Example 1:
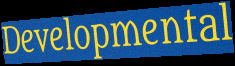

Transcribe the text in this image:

Developmental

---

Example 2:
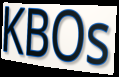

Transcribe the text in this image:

KBOs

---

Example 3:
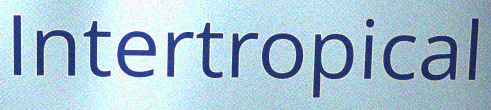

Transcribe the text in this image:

Intertropical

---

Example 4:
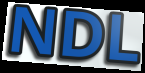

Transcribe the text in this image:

NDL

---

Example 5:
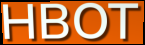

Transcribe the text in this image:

HBOT